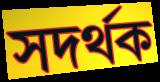
সদৰ্থক